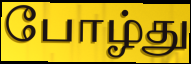
போழ்து